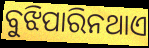
ବୁଝିପାରିନଥାଏ